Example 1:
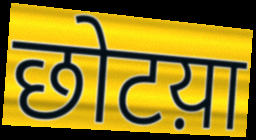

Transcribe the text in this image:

छोटय़ा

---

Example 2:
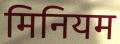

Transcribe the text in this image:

मिनियम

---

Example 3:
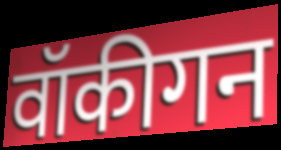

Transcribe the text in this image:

वॉकीगन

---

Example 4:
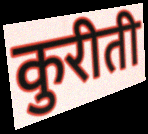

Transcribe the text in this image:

कुरीती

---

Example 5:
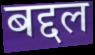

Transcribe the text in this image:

बद्दल